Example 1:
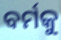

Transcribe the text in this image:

ବର୍ମକୁ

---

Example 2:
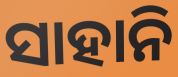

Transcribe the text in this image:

ସାହାନି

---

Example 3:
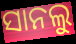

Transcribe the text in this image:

ସାନଲୁ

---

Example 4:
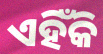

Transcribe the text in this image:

ଏହିଁକି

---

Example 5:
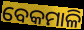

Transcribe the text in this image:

ବେକମାଳି